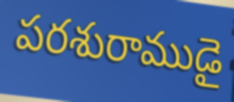
పరశురాముడై